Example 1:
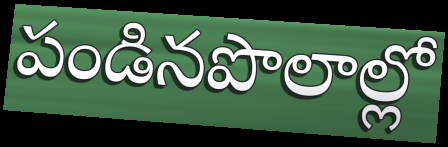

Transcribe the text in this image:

పండినపొలాల్లో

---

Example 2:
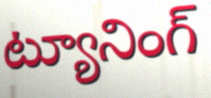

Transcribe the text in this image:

ట్యూనింగ్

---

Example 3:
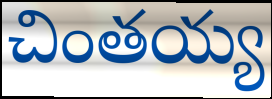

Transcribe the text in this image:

చింతయ్య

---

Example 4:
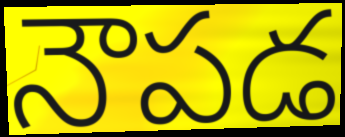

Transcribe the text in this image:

నౌపడ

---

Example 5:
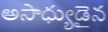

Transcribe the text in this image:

అసాధ్యుడైన